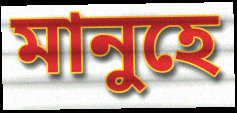
মানুহে